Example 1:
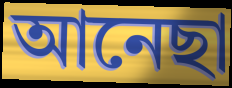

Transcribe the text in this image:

আনেছা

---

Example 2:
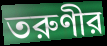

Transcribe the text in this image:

তরুণীর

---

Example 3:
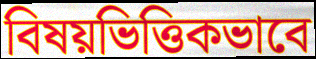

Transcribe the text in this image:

বিষয়ভিত্তিকভাবে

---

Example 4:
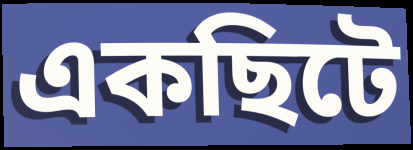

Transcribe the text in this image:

একছিটে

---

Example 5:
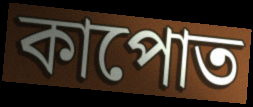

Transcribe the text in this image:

কাপোত